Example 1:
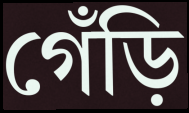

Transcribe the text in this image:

গেঁড়ি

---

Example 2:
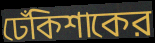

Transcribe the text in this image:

ঢেঁকিশাকের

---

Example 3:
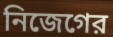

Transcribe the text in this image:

নিজেগের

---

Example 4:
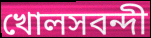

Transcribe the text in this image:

খোলসবন্দী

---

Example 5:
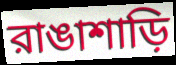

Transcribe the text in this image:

রাঙাশাড়ি